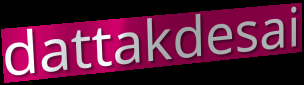
dattakdesai